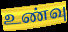
உண்வு